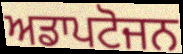
ਅਡਾਪਟੋਜਨ